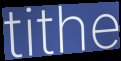
tithe